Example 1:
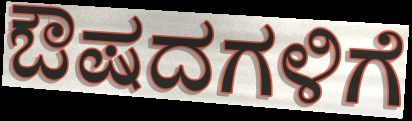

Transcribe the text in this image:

ಔಷದಗಳಿಗೆ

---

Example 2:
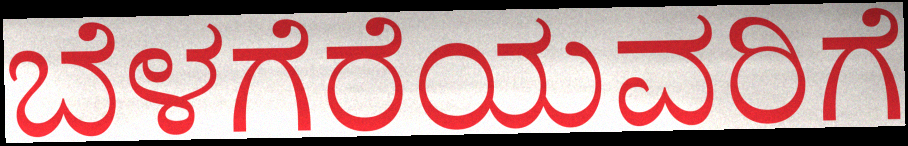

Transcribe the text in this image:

ಬೆಳಗೆರೆಯವರಿಗೆ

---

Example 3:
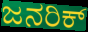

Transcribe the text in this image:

ಜನರಿಕ್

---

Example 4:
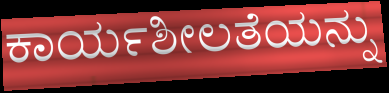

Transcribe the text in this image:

ಕಾರ್ಯಶೀಲತೆಯನ್ನು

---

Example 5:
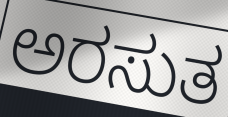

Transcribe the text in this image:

ಅರಸುತ